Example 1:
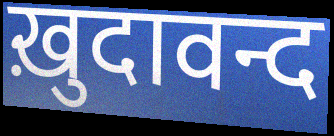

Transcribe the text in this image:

ख़ुदावन्द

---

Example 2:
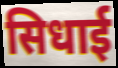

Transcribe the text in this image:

सिधाई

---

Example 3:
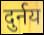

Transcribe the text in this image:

दुर्नय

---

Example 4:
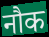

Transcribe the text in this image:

नौक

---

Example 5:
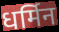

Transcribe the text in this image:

धर्मिन